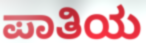
ಪಾತಿಯ